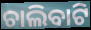
ଚାଲିବାଟି